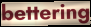
bettering